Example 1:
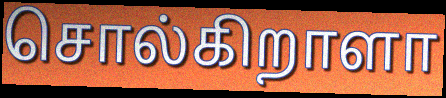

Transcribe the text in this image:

சொல்கிறாளா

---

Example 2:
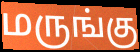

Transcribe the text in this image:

மருங்கு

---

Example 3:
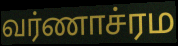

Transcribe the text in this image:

வர்ணாச்ரம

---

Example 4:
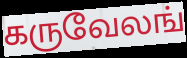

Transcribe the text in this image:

கருவேலங்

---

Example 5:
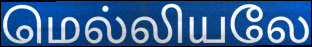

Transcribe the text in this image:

மெல்லியலே